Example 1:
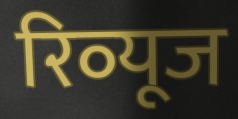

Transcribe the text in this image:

रिव्‍यूज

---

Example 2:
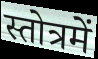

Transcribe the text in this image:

स्तोत्रमें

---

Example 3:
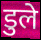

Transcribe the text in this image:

डुले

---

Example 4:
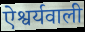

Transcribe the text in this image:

ऐश्वर्यवाली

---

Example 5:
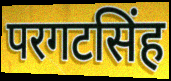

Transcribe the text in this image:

परगटसिंह